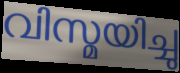
വിസ്മയിച്ചു